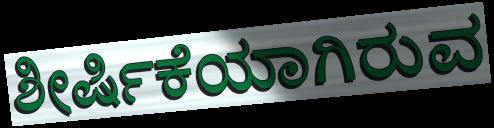
ಶೀರ್ಷಿಕೆಯಾಗಿರುವ